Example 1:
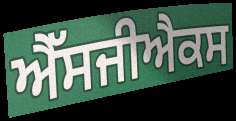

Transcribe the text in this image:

ਐੱਸਜੀਐਕਸ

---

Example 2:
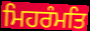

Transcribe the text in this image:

ਮਿਹਰੰਮਤਿ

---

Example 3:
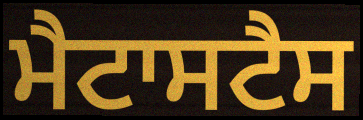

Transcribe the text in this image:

ਮੈਟਾਸਟੈਸ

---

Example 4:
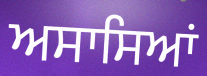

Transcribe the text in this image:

ਅਸਾਸਿਆਂ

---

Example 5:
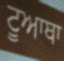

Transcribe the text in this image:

ਟੂਆਥਾ